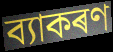
ব্যাকৰণ